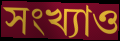
সংখ্যাও